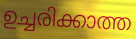
ഉച്ചരിക്കാത്ത